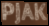
PJAK